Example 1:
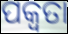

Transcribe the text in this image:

ପକ୍ୱତା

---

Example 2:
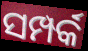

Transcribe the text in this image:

ସମ୍ପର୍କ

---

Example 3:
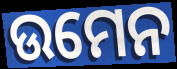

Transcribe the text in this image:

ଉମେନ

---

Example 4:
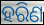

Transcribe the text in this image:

ହରିଣ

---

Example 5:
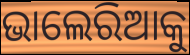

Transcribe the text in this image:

ଭାଲେରିଆକୁ